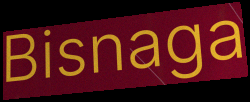
Bisnaga